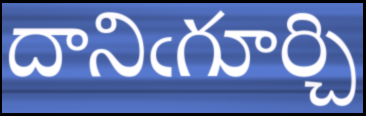
దానిఁగూర్చి